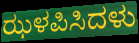
ಝಳಪಿಸಿದಳು